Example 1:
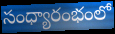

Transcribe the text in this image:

సంధ్యారంభంలో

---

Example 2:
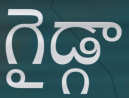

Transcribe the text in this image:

గైడ్గా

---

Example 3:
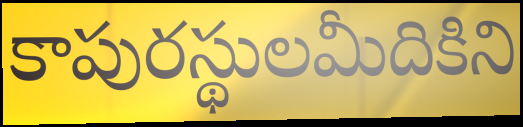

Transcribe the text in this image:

కాపురస్థులమీదికిని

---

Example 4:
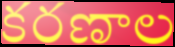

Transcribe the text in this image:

కరణాల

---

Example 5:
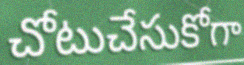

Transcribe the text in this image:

చోటుచేసుకోగా